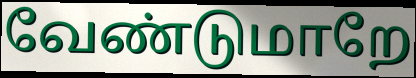
வேண்டுமாறே